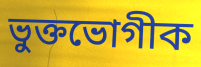
ভুক্তভোগীক